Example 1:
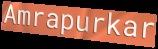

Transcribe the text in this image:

Amrapurkar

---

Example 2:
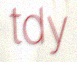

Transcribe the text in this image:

tdy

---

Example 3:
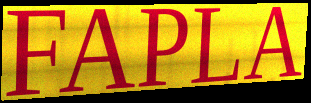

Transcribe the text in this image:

FAPLA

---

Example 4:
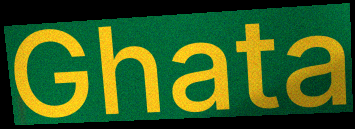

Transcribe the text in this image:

Ghata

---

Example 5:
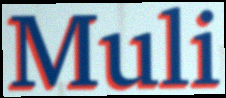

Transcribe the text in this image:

Muli